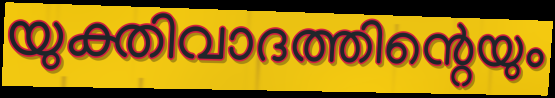
യുക്തിവാദത്തിന്റെയും